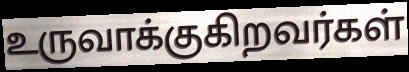
உருவாக்குகிறவர்கள்